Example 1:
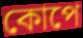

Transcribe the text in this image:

কোপে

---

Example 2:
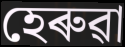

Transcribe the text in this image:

হেৰুৱা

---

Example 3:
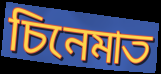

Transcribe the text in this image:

চিনেমাত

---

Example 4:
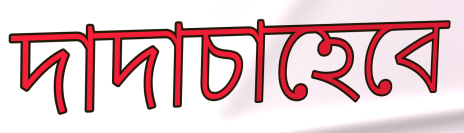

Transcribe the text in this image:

দাদাচাহেবে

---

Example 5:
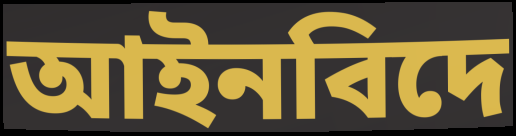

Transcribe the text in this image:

আইনবিদে